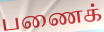
பணைக்